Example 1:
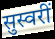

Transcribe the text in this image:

सुस्वरीं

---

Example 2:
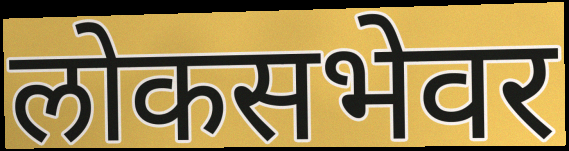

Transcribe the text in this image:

लोकसभेवर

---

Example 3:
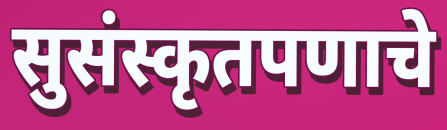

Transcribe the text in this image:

सुसंस्कृतपणाचे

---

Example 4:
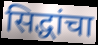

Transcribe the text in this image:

सिद्धांचा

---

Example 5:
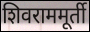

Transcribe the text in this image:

शिवराममूर्ती